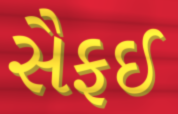
સૈફઈ